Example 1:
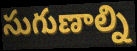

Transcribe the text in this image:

సుగుణాల్ని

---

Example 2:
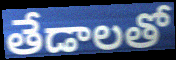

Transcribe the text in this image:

తేడాలతో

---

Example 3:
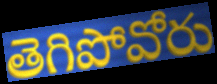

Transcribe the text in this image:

తెగిపోవోరు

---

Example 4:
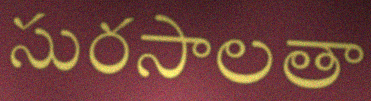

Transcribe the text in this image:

సురసాలతా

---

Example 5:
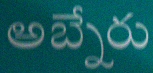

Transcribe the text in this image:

అబ్నేరు